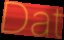
Dat